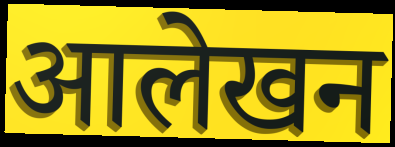
आलेखन